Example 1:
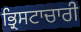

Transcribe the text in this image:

ਭ੍ਰਿਸਟਾਚਾਰੀ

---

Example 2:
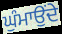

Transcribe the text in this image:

ਘੁੰਮਾਉਂਦੇ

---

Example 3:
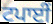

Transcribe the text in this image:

ਟਪਾਈਂ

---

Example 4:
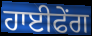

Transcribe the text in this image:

ਹਾਈਫੇਂਗ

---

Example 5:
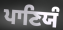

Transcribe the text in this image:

ਪਾਣਿਯੰ